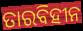
ତାରବିହୀନ